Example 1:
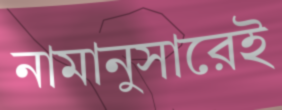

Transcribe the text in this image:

নামানুসারেই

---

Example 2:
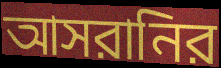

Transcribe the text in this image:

আসরানির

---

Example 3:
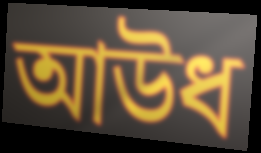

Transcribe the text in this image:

আউধ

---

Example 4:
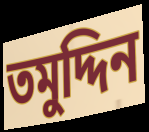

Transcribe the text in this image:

তমুদ্দিন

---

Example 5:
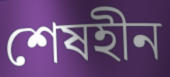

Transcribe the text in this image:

শেষহীন